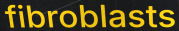
fibroblasts